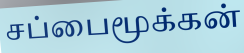
சப்பைமூக்கன்